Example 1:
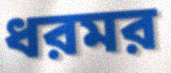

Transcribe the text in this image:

ধরমর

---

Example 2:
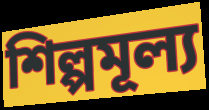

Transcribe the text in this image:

শিল্পমূল্য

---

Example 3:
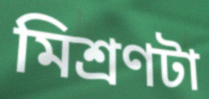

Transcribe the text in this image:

মিশ্রণটা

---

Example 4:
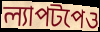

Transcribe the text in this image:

ল্যাপটপেও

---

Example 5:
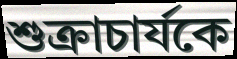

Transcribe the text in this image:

শুক্রাচার্যকে